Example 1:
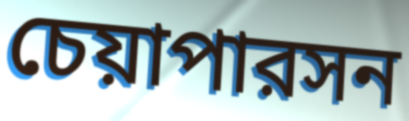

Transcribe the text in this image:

চেয়াপারসন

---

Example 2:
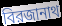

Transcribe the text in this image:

বিরজানাথ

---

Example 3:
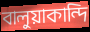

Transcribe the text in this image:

বালুয়াকান্দি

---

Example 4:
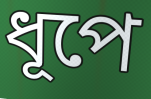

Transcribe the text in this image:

ধূপে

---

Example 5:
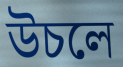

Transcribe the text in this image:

উচলে